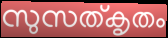
സുസത്കൃതം